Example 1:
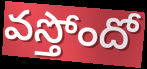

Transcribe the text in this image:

వస్తోందో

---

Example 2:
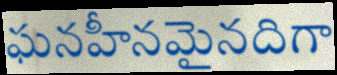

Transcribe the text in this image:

ఘనహీనమైనదిగా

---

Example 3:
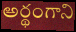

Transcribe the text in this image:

అర్థంగాని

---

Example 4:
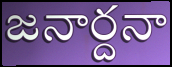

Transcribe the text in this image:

జనార్దనా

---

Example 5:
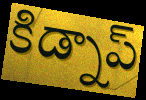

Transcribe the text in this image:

కిడ్నాప్